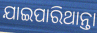
ଯାଇପାରିଥାନ୍ତା